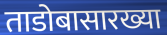
ताडोबासारख्या